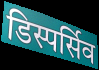
डिस्पर्सिव